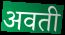
अवती